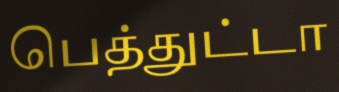
பெத்துட்டா